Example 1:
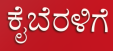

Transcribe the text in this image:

ಕೈಬೆರಳಿಗೆ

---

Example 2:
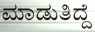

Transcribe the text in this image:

ಮಾಡುತಿದ್ದೆ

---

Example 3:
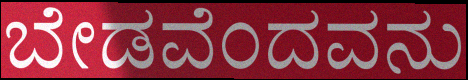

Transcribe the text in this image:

ಬೇಡವೆಂದವನು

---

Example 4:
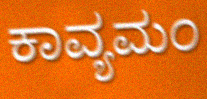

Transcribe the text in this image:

ಕಾವ್ಯಮಂ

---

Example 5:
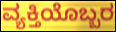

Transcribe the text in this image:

ವ್ಯಕ್ತಿಯೊಬ್ಬರ